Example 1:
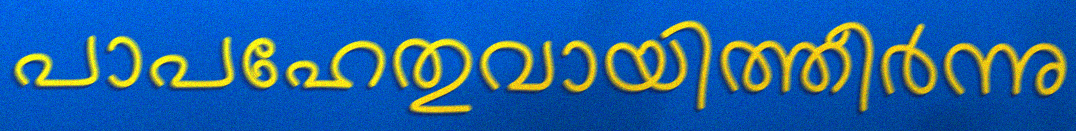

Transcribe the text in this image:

പാപഹേതുവായിത്തീർന്നു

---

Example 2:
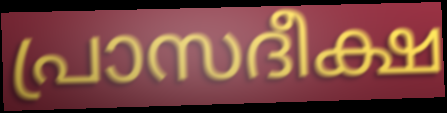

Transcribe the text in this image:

പ്രാസദീക്ഷ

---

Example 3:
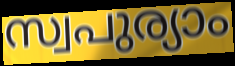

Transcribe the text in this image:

സ്വപുര്യാം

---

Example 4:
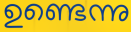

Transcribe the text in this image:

ഉണ്ടെന്നു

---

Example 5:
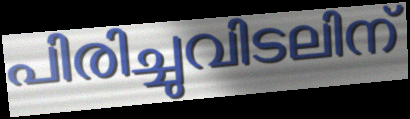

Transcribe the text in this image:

പിരിച്ചുവിടലിന്